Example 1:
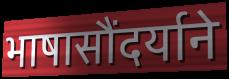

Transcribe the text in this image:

भाषासौंदर्याने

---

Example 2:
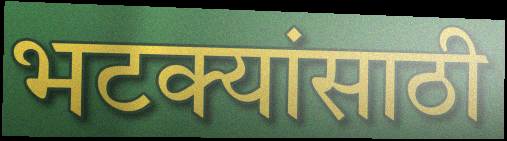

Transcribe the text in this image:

भटक्यांसाठी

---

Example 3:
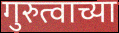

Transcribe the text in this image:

गुरुत्वाच्या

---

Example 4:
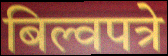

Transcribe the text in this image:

बिल्वपत्रे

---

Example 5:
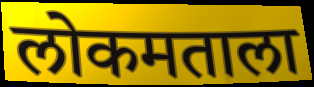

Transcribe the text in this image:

लोकमताला